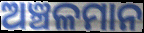
ଅଞ୍ଚଳମାନ